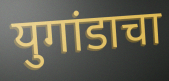
युगांडाचा